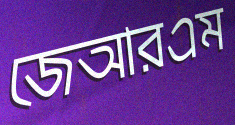
জেআরএম